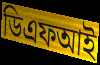
ডিএফআই